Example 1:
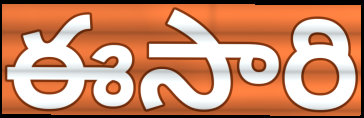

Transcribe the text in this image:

ఈసారి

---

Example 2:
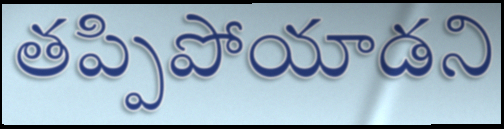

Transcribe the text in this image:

తప్పిపోయాడని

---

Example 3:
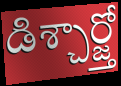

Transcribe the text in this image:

డిశ్చార్జ్తో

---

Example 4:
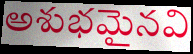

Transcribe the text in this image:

అశుభమైనవి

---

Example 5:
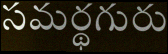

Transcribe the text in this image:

సమర్థగురు